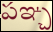
పఞ్చ